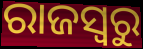
ରାଜସ୍ବରୁ